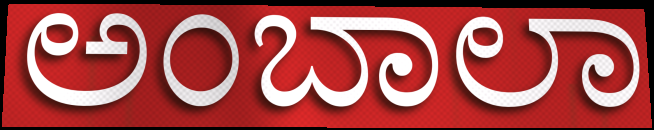
ಅಂಬಾಲಾ